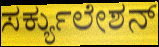
ಸರ್ಕ್ಯುಲೇಶನ್